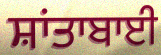
ਸ਼ਾਂਤਾਬਾਈ